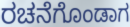
ರಚನೆಗೊಂಡಾಗ